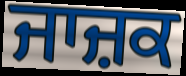
ਜਾਜ਼ਕ